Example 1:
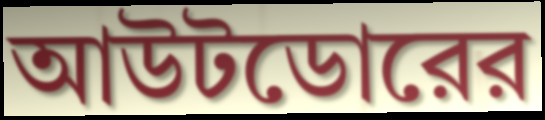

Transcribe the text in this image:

আউটডোরের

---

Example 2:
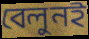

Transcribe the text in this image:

বেলুনই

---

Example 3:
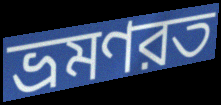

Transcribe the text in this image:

ভ্রমণরত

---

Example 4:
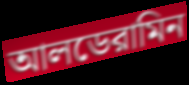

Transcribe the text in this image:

আলডেরামিন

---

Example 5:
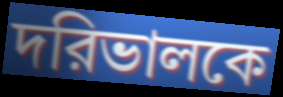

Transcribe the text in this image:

দরিভালকে